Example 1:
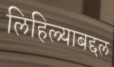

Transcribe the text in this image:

लिहिल्याबद्दल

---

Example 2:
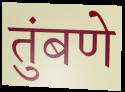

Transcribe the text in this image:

तुंबणे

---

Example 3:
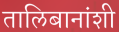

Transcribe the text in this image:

तालिबानांशी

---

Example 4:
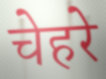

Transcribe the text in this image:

चेहरे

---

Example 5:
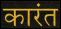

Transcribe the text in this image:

कारंत